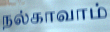
நல்காவாம்